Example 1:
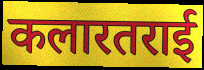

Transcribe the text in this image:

कलारतराई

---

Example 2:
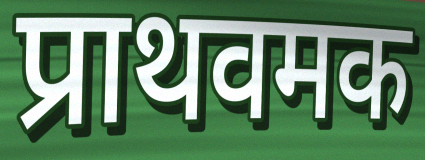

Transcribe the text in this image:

प्राथवमक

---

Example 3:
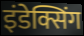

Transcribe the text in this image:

इंडेक्सिंग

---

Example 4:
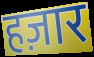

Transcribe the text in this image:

हज़ार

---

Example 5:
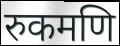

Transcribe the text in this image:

रुकमणि